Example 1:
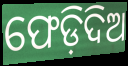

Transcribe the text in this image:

ଫେଡ଼ିଦିଅ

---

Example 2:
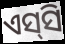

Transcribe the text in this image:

ଏସ୍‍ସି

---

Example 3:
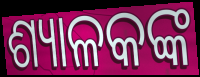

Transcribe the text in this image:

ଶ୍ୟାଳକଙ୍କ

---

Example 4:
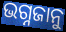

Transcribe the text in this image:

ଭଗ୍ନଜାନୁ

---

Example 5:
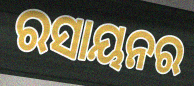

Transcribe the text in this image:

ରସାୟନର